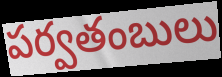
పర్వతంబులు